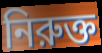
নিরুক্ত